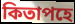
কিতাপহে